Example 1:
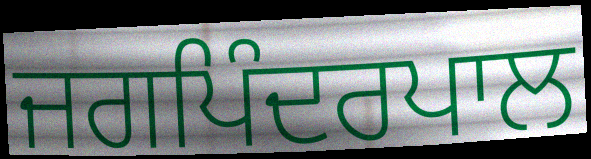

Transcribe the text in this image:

ਜਗਪਿੰਦਰਪਾਲ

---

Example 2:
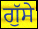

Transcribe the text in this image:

ਗੁੱਸੇ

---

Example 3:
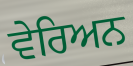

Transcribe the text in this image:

ਵੇਰਿਅਨ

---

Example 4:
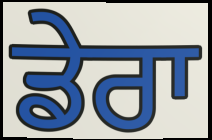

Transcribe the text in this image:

ਡੇਰਾ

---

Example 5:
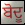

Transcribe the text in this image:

ਬੋਦੂ